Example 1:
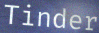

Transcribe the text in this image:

Tinder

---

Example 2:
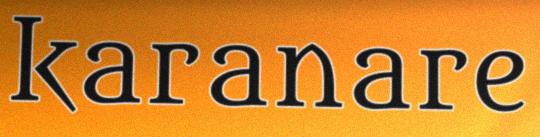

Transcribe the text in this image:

karanare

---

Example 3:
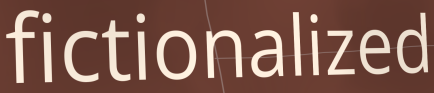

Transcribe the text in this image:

fictionalized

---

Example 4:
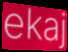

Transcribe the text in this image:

ekaj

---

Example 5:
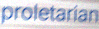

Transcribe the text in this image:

proletarian